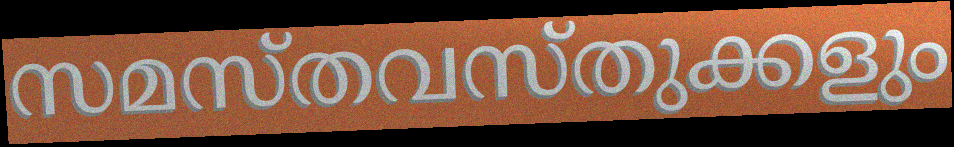
സമസ്തവസ്തുക്കളും